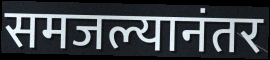
समजल्यानंतर